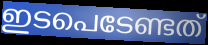
ഇടപെടേണ്ടത്